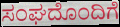
ಸಂಘದೊಂದಿಗೆ